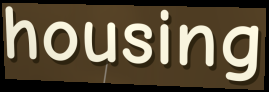
housing